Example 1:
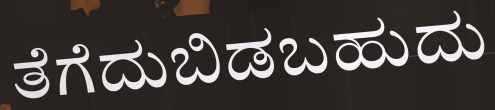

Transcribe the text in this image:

ತೆಗೆದುಬಿಡಬಹುದು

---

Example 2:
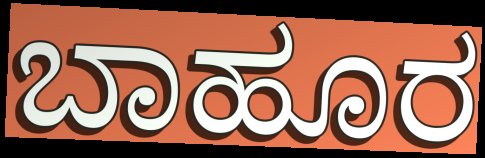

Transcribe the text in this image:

ಬಾಹೂರ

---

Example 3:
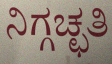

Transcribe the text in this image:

ನಿಗ್ಗಚ್ಛತಿ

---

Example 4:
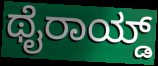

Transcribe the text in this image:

ಥೈರಾಯ್ಡ್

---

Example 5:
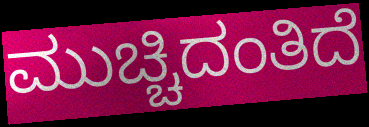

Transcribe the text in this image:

ಮುಚ್ಚಿದಂತಿದೆ